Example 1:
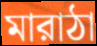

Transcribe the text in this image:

মারাঠা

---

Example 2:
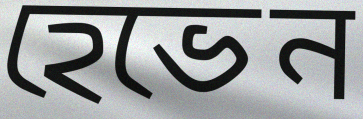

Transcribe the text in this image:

হেভেন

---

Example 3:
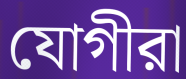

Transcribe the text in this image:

যোগীরা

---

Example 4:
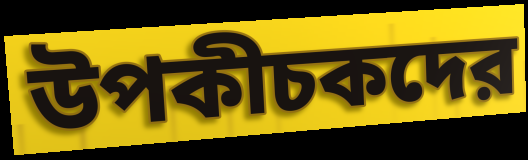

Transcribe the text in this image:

উপকীচকদের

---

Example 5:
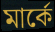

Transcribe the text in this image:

মার্কে